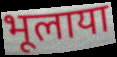
भूलाया